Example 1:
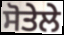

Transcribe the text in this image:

ਸੋਤੇਲੇ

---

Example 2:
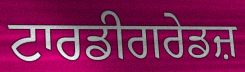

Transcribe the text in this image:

ਟਾਰਡੀਗਰੇਡਜ਼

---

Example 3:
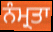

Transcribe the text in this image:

ਨੰਮ੍ਰਤਾ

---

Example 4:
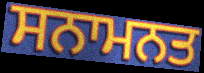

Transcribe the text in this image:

ਸਨਾਮਨਤ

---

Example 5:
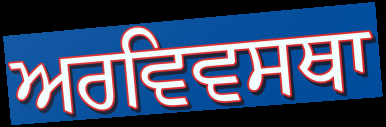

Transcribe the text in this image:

ਅਰਵਿਵਸਥਾ